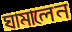
ঘামালেন